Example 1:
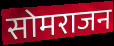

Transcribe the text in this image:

सोमराजन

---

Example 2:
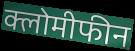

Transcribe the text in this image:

क्लोमीफीन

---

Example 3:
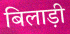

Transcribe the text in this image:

बिलाड़ी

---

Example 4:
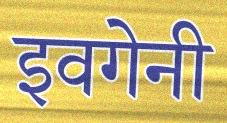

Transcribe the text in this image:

इवगेनी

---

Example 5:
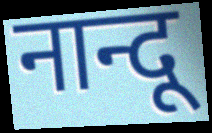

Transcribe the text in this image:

नान्दू